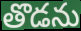
తొడను